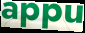
appu